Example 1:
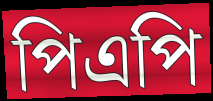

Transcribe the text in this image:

পিএপি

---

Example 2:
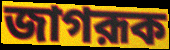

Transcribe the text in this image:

জাগরূক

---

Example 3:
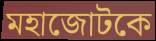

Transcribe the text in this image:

মহাজোটকে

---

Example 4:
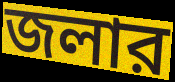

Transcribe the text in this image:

জলার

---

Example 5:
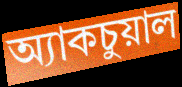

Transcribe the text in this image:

অ্যাকচুয়াল